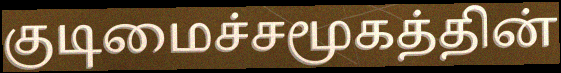
குடிமைச்சமூகத்தின்